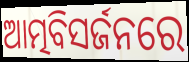
ଆତ୍ମବିସର୍ଜନରେ